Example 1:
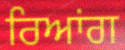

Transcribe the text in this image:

ਰਿਆਂਗ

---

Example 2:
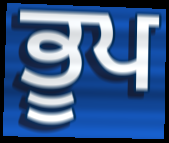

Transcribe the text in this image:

ਭੂਪ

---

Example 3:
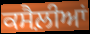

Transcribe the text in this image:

ਕਸੈਲ਼ੀਆਂ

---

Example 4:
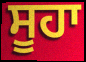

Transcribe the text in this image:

ਸੂਹਾ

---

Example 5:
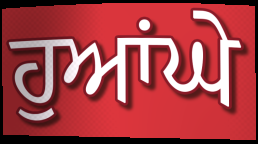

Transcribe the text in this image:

ਹੁਆਂਘੇ